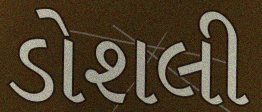
ડોશલી